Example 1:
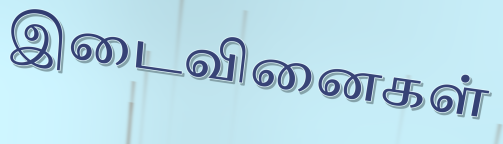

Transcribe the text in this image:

இடைவினைகள்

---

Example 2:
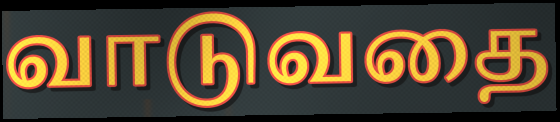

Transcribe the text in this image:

வாடுவதை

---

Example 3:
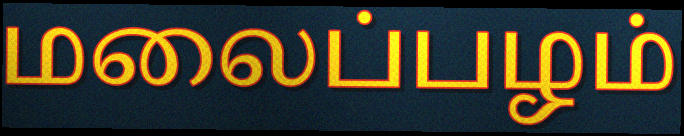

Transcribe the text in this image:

மலைப்பழம்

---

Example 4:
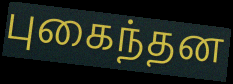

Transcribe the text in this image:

புகைந்தன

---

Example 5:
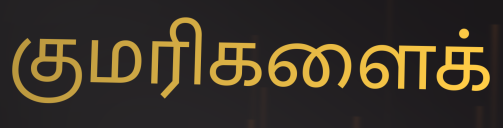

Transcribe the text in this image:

குமரிகளைக்